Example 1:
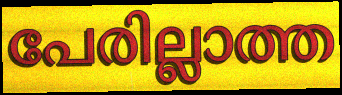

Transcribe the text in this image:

പേരില്ലാത്ത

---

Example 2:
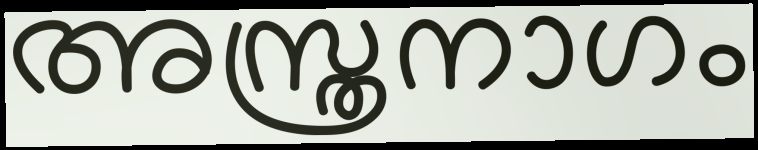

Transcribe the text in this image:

അസ്ത്രനാഗം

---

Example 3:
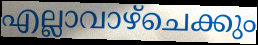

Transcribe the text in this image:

എല്ലാവാഴ്ചെക്കും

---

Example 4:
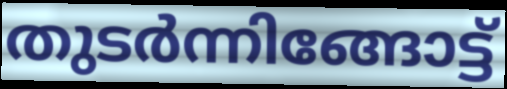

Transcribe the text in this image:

തുടർന്നിങ്ങോട്ട്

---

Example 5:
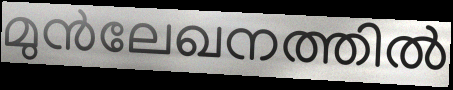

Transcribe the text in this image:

മുൻലേഖനത്തിൽ